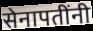
सेनापतींनी